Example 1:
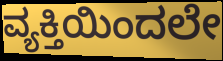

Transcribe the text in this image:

ವ್ಯಕ್ತಿಯಿಂದಲೇ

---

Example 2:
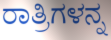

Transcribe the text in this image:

ರಾತ್ರಿಗಳನ್ನ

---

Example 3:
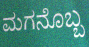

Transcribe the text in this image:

ಮಗನೊಬ್ಬ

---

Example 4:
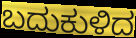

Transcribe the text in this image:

ಬದುಕುಳಿದ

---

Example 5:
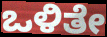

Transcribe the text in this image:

ಒಳಿತೇ